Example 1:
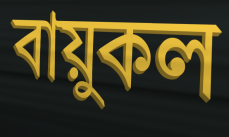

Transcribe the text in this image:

বায়ুকল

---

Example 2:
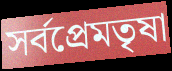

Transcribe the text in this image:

সর্বপ্রেমতৃষা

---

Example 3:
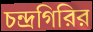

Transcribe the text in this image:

চন্দ্রগিরির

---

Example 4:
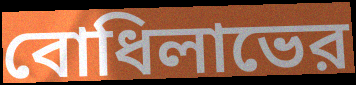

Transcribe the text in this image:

বোধিলাভের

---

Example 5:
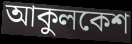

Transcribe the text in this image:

আকুলকেশ